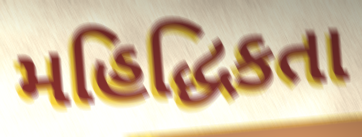
મહિદ્ધિકતા